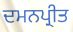
ਦਮਨਪ੍ਰੀਤ